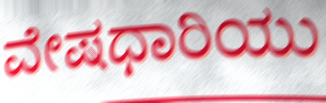
ವೇಷಧಾರಿಯು